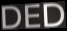
DED